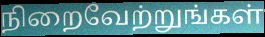
நிறைவேற்றுங்கள்